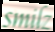
smilz